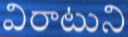
విరాటుని